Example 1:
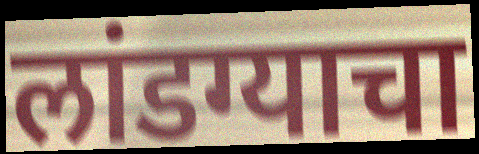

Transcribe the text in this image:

लांडग्याचा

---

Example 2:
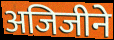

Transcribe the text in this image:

अजिजीने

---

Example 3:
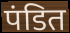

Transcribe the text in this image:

पंडित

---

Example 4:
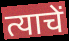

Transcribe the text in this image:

त्याचें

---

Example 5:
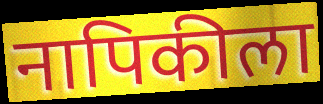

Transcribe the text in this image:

नापिकीला